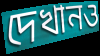
দেখানও